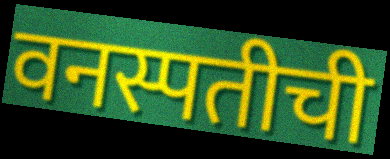
वनस्पतीची